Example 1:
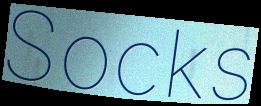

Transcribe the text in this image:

Socks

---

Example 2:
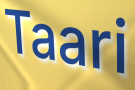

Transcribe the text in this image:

Taari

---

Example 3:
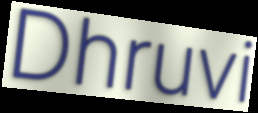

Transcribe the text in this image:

Dhruvi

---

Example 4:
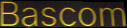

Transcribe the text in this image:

Bascom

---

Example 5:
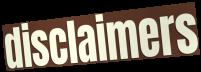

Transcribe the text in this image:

disclaimers